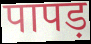
पापड़